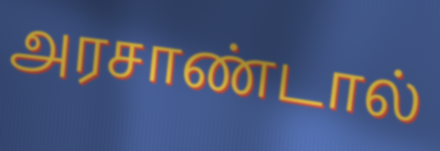
அரசாண்டால்